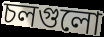
চলগুলো